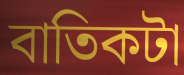
বাতিকটা